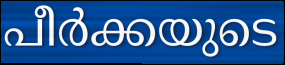
പീർക്കയുടെ